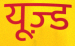
यूज़्ड